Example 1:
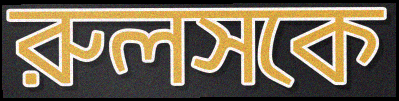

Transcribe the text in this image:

রুলসকে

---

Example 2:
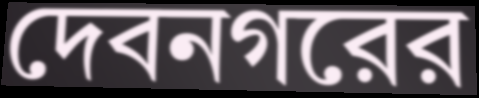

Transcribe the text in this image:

দেবনগরের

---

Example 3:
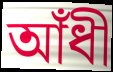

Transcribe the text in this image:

আঁধী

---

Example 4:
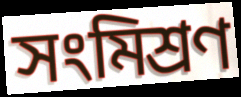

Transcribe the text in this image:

সংমিশ্রণ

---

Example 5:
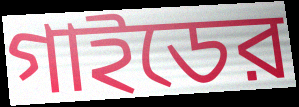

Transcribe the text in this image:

গাইডের